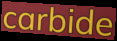
carbide